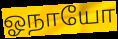
ஓநாயோ